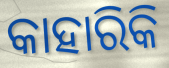
କାହାରିକି